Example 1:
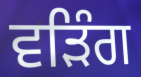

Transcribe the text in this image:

ਵੜਿੰਗ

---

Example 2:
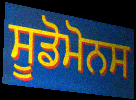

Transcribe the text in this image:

ਸੂਡੋਮੋਨਸ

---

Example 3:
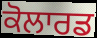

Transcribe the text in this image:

ਕੋਲਾਰਡ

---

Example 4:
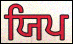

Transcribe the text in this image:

ਯਿਪ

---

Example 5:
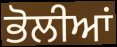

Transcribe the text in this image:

ਭੋਲੀਆਂ